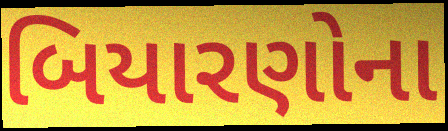
બિયારણોના